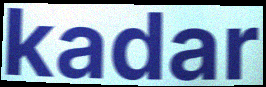
kadar